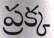
ప్రక్క